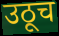
उठूच